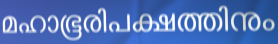
മഹാഭൂരിപക്ഷത്തിനും